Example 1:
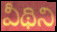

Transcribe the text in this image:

వీథిని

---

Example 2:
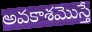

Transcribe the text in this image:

అవకాశమొస్తే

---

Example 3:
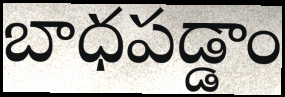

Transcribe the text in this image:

బాధపడ్డాం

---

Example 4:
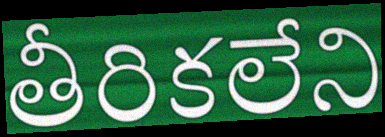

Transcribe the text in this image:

తీరికలేని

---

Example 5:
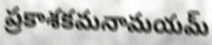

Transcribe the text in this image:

ప్రకాశకమనామయమ్